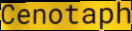
Cenotaph